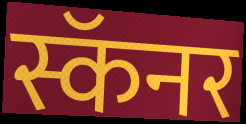
स्कॅनर